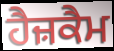
ਹੈਜ਼ਕੈਮ